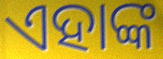
ଏହାଙ୍କ